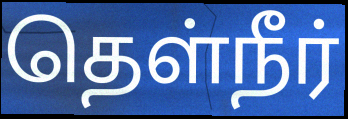
தெள்நீர்